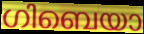
ഗിബെയാ